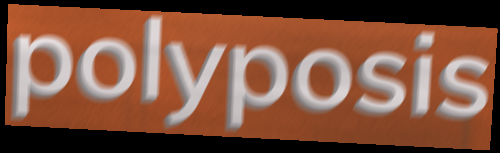
polyposis